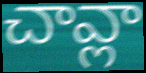
చావ్లా